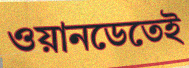
ওয়ানডেতেই